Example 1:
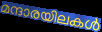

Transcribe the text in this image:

മന്ദാരയിലകൾ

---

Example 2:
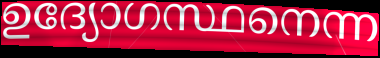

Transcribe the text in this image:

ഉദ്യോഗസ്ഥനെന്ന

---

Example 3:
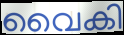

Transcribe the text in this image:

വൈകി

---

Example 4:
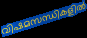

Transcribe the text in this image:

വിഷമസന്ധികളിൽ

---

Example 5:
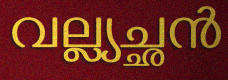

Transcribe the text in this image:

വല്ല്യച്ഛൻ